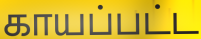
காயப்பட்ட